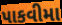
પાકવીમા